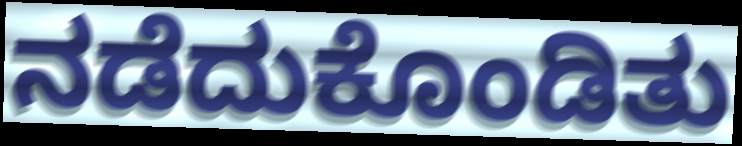
ನಡೆದುಕೊಂಡಿತು